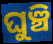
ଘୁଞ୍ଚି